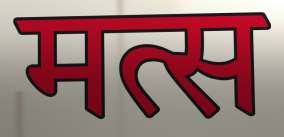
मत्स